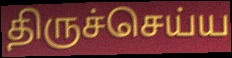
திருச்செய்ய